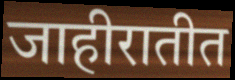
जाहीरातीत